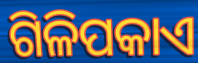
ଗିଳିପକାଏ